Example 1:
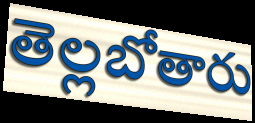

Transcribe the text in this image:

తెల్లబోతారు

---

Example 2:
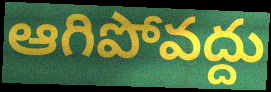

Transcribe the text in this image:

ఆగిపోవద్దు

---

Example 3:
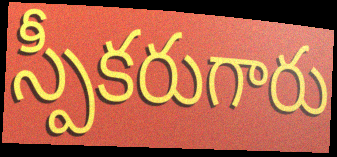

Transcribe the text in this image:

స్పీకరుగారు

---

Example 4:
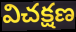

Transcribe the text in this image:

విచక్షణ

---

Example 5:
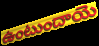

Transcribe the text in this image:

ఉంటుందాయె